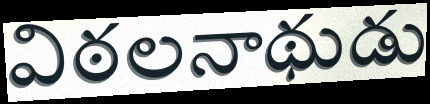
విఠలనాథుడు